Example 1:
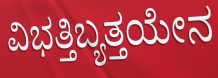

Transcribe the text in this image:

ವಿಭತ್ತಿಬ್ಯತ್ತಯೇನ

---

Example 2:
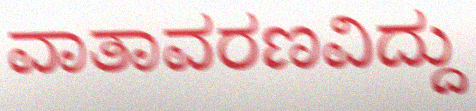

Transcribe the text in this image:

ವಾತಾವರಣವಿದ್ದು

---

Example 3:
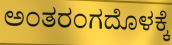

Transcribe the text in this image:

ಅಂತರಂಗದೊಳಕ್ಕೆ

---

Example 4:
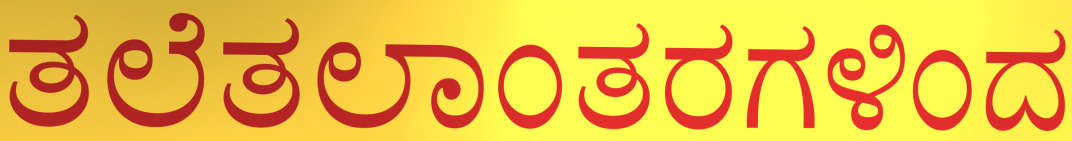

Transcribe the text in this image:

ತಲೆತಲಾಂತರಗಳಿಂದ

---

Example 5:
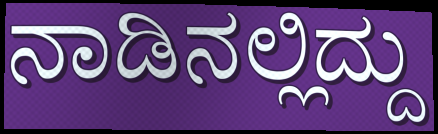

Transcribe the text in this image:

ನಾಡಿನಲ್ಲಿದ್ದು